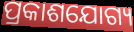
ପ୍ରକାଶଯୋଗ୍ୟ